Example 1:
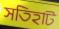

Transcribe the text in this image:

সতিহাট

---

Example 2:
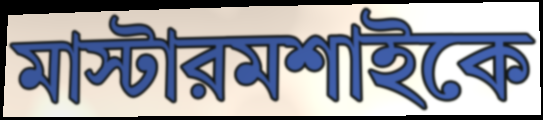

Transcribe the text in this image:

মাস্টারমশাইকে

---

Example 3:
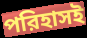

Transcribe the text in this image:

পরিহাসই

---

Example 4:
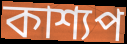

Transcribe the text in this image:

কাশ্যপ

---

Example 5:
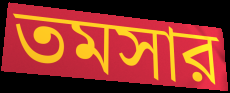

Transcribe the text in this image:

তমসার